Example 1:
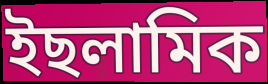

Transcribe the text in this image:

ইছলামিক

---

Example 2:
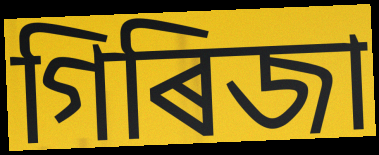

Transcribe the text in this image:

গিৰিজা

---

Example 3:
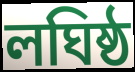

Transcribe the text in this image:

লঘিষ্ঠ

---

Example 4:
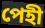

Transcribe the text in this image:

পেহী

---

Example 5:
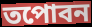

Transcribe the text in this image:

তপোবন